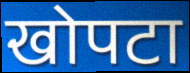
खोपटा